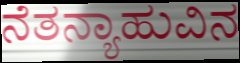
ನೆತನ್ಯಾಹುವಿನ